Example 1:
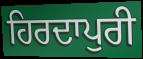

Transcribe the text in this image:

ਹਿਰਦਾਪੁਰੀ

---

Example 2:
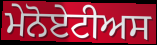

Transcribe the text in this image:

ਮੇਨੋਏਟੀਅਸ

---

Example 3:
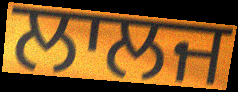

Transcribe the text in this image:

ਲਾਲਜ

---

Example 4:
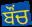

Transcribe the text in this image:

ਬੌਂਚ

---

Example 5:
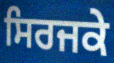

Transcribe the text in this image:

ਸਿਰਜਕੇ